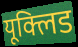
यूक्लिड